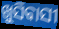
ଖୁସିବାସୀ